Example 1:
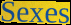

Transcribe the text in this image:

Sexes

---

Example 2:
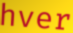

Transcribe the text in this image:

hver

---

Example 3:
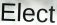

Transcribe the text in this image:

Elect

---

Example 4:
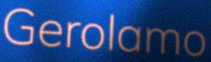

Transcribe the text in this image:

Gerolamo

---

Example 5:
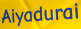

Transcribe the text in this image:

Aiyadurai